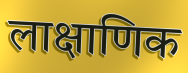
लाक्षाणिक